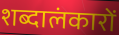
शब्दालंकारों